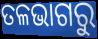
ତଳଭାଗରୁ